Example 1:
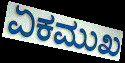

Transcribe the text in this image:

ಏಕಮುಖ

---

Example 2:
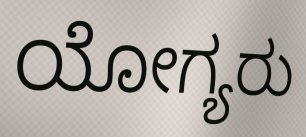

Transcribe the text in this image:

ಯೋಗ್ಯರು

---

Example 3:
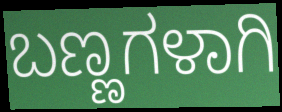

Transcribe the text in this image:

ಬಣ್ಣಗಳಾಗಿ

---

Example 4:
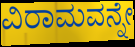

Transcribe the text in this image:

ವಿರಾಮವನ್ನೇ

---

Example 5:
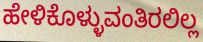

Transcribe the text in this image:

ಹೇಳಿಕೊಳ್ಳುವಂತಿರಲಿಲ್ಲ